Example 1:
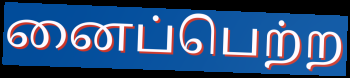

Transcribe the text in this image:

னைப்பெற்ற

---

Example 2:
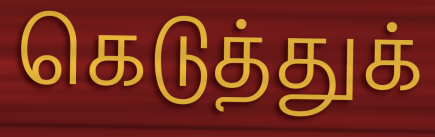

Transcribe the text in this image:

கெடுத்துக்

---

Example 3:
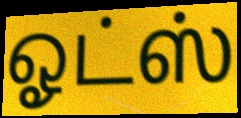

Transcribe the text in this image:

ஓட்ஸ்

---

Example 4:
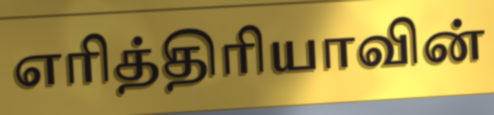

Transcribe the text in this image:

எரித்திரியாவின்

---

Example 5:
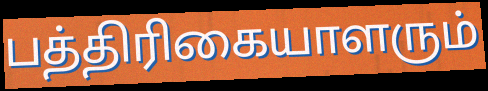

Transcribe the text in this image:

பத்திரிகையாளரும்